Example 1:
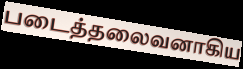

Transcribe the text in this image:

படைத்தலைவனாகிய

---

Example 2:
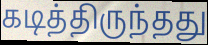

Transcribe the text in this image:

கடித்திருந்தது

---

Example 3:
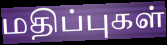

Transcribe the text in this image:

மதிப்புகள்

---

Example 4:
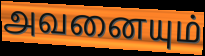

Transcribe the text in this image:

அவனையும்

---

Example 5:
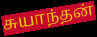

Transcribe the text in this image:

சுயாந்தன்